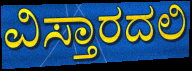
ವಿಸ್ತಾರದಲಿ